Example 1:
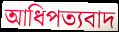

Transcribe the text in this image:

আধিপত্যবাদ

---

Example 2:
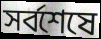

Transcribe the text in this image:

সর্বশেষে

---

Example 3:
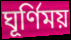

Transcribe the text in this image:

ঘূর্ণিময়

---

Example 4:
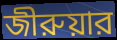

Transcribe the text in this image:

জীরুয়ার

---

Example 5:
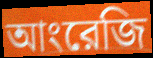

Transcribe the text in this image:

আংরেজি